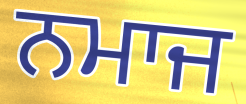
ਨਮਾਜ